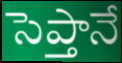
సెప్తానే